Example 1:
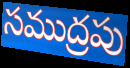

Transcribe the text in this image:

సముద్రపు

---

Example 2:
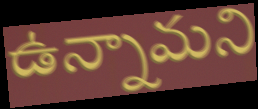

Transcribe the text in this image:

ఉన్నామని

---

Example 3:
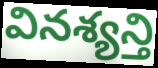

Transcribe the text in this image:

వినశ్యన్తి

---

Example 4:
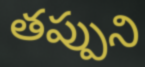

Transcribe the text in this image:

తప్పుని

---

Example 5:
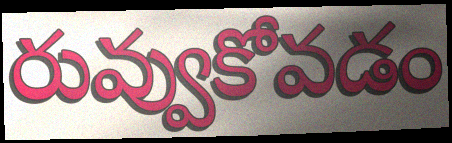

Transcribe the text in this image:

రువ్వుకోవడం